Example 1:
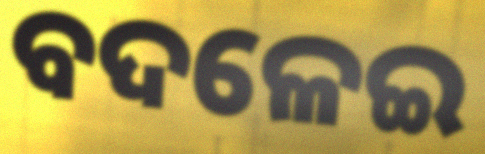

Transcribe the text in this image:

ବଦଳେଇ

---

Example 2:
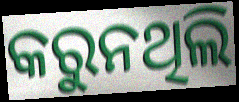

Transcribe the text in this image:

କରୁନଥିଲି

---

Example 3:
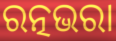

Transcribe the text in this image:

ରତ୍ନଭରା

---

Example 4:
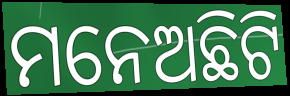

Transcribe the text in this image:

ମନେଅଛିଟି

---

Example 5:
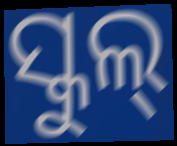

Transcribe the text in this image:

ସ୍କୁଲ୍